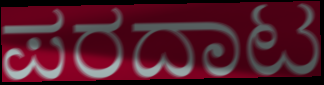
ಪರದಾಟ